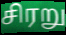
சிரறு